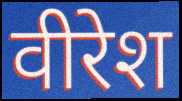
वीरेश